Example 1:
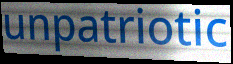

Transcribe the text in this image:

unpatriotic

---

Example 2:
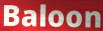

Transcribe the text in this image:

Baloon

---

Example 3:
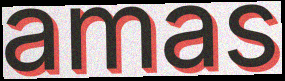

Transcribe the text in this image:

amas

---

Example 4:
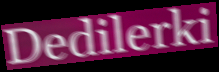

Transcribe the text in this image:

Dedilerki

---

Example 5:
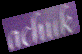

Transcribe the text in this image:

achuk